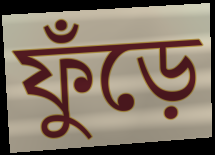
ফুঁড়ে